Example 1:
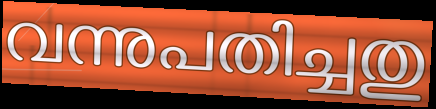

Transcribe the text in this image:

വന്നുപതിച്ചതു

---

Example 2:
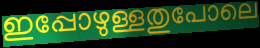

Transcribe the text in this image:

ഇപ്പോഴുള്ളതുപോലെ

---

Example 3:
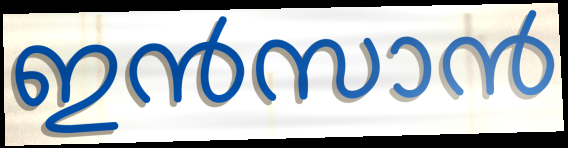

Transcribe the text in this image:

ഇൻസാൻ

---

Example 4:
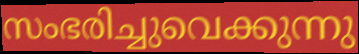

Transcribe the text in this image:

സംഭരിച്ചുവെക്കുന്നു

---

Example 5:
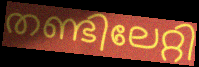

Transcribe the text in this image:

തണ്ടിലേറ്റി